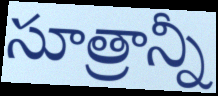
సూత్రాన్నీ